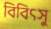
বিবিৎসু